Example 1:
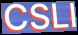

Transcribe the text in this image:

CSLI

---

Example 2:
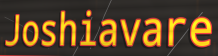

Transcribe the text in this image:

Joshiavare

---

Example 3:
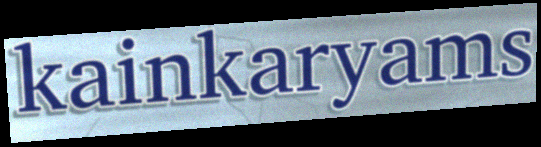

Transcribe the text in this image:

kainkaryams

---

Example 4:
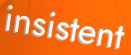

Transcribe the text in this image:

insistent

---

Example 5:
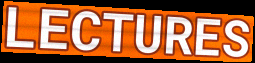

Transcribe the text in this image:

LECTURES